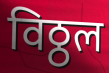
विठ्ठल